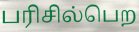
பரிசில்பெற